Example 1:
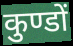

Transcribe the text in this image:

कुण्डों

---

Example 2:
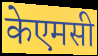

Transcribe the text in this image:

केएमसी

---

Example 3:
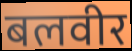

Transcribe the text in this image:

बलवीर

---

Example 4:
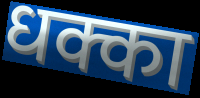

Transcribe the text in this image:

धक्का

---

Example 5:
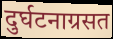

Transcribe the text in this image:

दुर्घटनाग्रसत